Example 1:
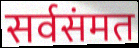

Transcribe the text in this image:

सर्वसंमत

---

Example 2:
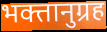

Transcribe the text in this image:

भक्तानुग्रह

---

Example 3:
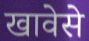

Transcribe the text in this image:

खावेसे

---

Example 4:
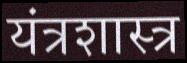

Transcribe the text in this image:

यंत्रशास्त्र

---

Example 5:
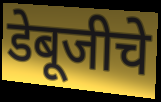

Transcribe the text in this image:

डेबूजीचे